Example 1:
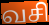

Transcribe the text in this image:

வசி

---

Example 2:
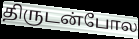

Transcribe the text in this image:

திருடன்போல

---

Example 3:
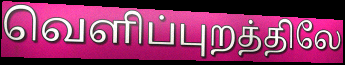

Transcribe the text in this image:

வெளிப்புறத்திலே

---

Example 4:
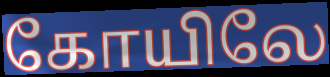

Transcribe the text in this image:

கோயிலே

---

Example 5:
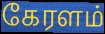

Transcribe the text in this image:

கேரளம்